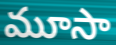
మూసా